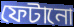
ফেটানো